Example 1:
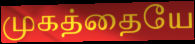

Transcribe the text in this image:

முகத்தையே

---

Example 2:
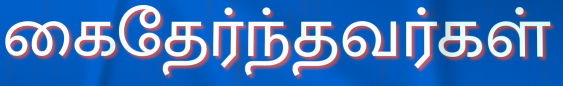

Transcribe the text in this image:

கைதேர்ந்தவர்கள்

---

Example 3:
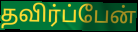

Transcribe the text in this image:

தவிர்ப்பேன்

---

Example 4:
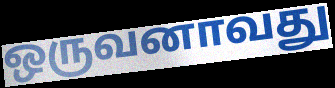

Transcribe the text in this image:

ஒருவனாவது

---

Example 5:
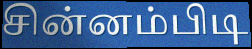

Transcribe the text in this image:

சின்னம்பிடி